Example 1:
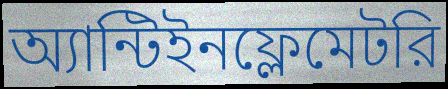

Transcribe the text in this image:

অ্যান্টিইনফ্লেমেটরি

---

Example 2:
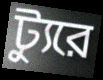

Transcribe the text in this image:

ট্যুরে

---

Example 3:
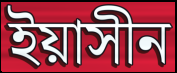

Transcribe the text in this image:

ইয়াসীন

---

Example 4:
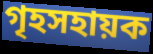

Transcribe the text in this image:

গৃহসহায়ক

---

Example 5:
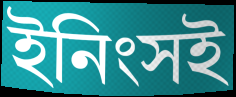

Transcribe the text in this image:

ইনিংসই